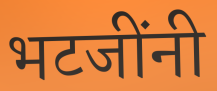
भटजींनी